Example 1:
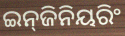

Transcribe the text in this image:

ଇନ୍‍ଜିନିୟରିଂ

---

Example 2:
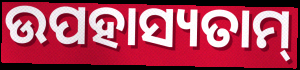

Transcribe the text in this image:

ଉପହାସ୍ୟତାମ୍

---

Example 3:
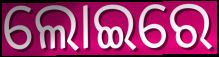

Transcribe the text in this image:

ଲୋଇରେ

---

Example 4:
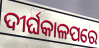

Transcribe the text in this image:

ଦୀର୍ଘକାଳପରେ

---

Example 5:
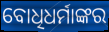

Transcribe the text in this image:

ବୋଧିଧର୍ମାଙ୍କର